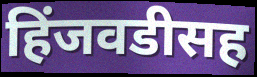
हिंजवडीसह